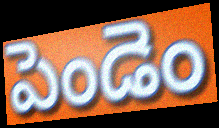
పెండెం